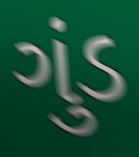
ગુંડ